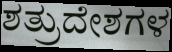
ಶತ್ರುದೇಶಗಳ